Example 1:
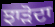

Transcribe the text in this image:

ਝਾੜੋਦਾ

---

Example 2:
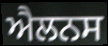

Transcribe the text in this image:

ਐਲਨਸ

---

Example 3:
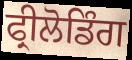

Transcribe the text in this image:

ਫ੍ਰੀਲੋਡਿੰਗ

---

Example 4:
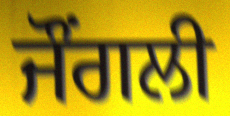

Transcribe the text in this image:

ਜੌਂਗਲੀ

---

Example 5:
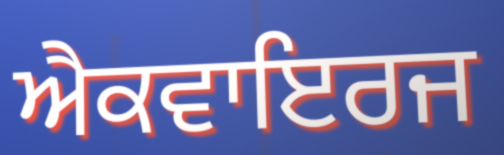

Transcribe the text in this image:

ਐਕਵਾਇਰਜ